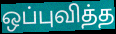
ஒப்புவித்த